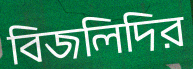
বিজলিদির